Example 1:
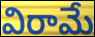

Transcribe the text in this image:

విరామే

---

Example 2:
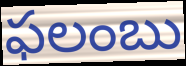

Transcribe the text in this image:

ఫలంబు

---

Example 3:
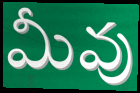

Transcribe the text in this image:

మీవు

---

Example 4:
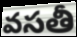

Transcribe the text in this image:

వసతీ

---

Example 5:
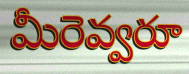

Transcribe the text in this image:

మీరెవ్వరూ